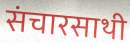
संचारसाथी